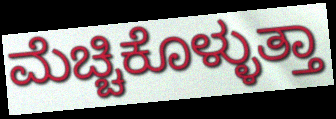
ಮೆಚ್ಚಿಕೊಳ್ಳುತ್ತಾ